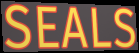
SEALS